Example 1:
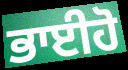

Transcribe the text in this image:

ਭਾਈਹੋ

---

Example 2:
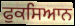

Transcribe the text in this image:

ਫੁਕਸਿਆਨ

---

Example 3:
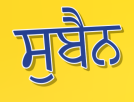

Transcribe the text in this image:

ਸੁਬੈਨ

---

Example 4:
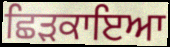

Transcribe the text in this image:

ਛਿੜਕਾਇਆ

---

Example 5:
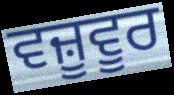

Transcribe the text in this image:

ਵਜ਼ੂਵੂਰ